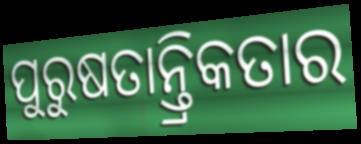
ପୁରୁଷତାନ୍ତ୍ରିକତାର